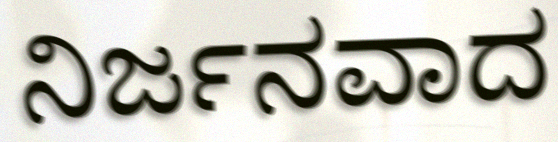
ನಿರ್ಜನವಾದ